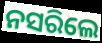
ନସରିଲେ